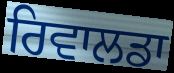
ਰਿਵਾਲਡਾ